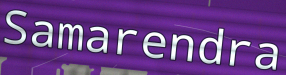
Samarendra